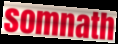
somnath